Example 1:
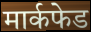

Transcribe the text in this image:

मार्कफेड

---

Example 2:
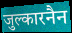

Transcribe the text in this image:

जुल्कारनैन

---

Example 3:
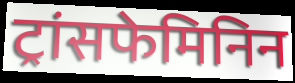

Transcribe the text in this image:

ट्रांसफेमिनिन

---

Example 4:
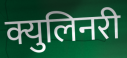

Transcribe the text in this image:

क्युलिनरी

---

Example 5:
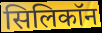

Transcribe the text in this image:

सिलिकॉन